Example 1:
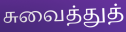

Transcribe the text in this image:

சுவைத்துத்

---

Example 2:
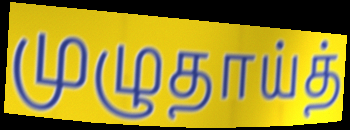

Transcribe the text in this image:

முழுதாய்த்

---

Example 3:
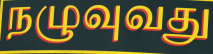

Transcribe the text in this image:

நழுவுவது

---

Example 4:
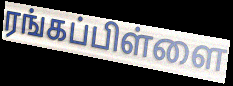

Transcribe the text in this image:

ரங்கப்பிள்ளை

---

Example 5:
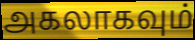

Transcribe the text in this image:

அகலாகவும்